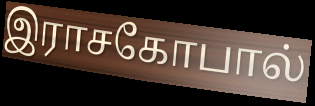
இராசகோபால்